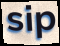
sip